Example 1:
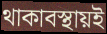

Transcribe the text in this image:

থাকাবস্থায়ই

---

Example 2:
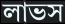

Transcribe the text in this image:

লাভস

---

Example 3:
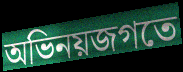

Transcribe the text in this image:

অভিনয়জগতে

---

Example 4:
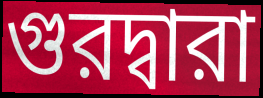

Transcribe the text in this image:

গুরদ্বারা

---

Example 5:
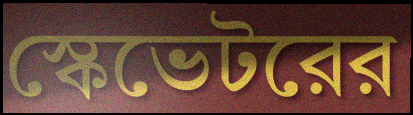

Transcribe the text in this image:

স্কেভেটরের